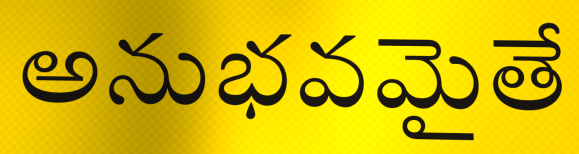
అనుభవమైతే